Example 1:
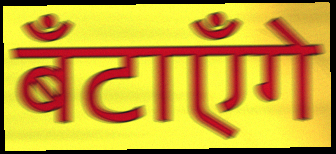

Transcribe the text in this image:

बँटाएँगे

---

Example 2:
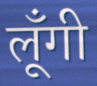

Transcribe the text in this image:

लूँगी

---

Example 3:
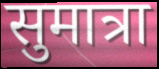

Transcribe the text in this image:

सुमात्रा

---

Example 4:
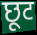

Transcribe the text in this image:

छूट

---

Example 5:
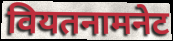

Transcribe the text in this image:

वियतनामनेट